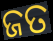
ଜତ